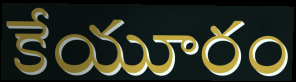
కేయూరం